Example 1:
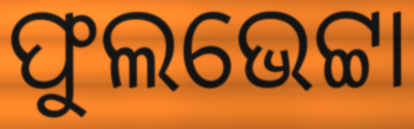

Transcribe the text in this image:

ଫୁଲଭେଟ୍ଟା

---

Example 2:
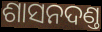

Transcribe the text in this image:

ଶାସନଦଣ୍ତ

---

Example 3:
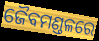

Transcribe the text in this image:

ଜୈବମଣ୍ଡଳରେ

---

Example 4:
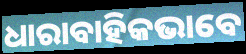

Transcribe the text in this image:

ଧାରାବାହିକଭାବେ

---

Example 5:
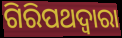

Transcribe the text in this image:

ଗିରିପଥଦ୍ୱାରା